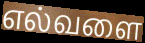
எல்வளை